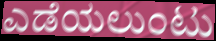
ಎಡೆಯಲುಂಟು